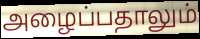
அழைப்பதாலும்